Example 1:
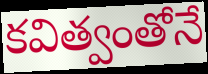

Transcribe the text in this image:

కవిత్వంతోనే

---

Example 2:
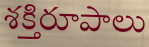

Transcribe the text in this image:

శక్తిరూపాలు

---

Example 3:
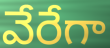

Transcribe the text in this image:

వేరేగా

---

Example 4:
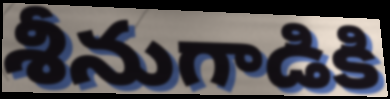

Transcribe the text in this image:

శీనుగాడికి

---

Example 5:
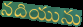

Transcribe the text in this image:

నదియును